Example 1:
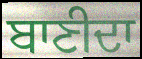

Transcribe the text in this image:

ਬਾਣੀਦਾ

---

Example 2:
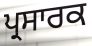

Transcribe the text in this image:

ਪ੍ਰਸਾਰਕ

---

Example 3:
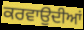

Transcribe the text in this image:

ਕਰਵਾਉੁਂਦੀਆਂ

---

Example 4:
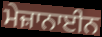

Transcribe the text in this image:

ਮੇਜ਼ਾਨਾਈਨ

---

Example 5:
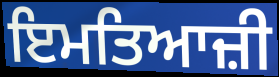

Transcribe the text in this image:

ਇਮਤਿਆਜ਼ੀ